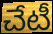
చేటీ